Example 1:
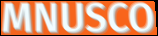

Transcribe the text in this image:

MNUSCO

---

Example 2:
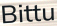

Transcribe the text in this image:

Bittu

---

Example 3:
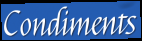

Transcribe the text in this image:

Condiments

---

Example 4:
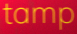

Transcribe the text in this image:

tamp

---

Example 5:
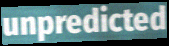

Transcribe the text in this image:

unpredicted